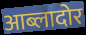
आब्लादोर